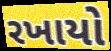
રખાયો